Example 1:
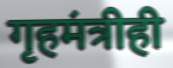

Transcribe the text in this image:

गृहमंत्रीही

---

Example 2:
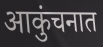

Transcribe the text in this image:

आकुंचनात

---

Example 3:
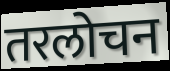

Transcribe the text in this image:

तरलोचन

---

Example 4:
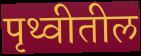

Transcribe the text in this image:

पृथ्वीतील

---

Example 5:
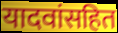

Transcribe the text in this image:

यादवांसहित